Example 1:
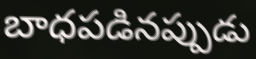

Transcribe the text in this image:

బాధపడినప్పుడు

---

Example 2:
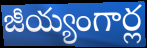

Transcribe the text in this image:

జీయ్యంగార్ల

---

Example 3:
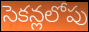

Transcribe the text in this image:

సెకన్లలోపు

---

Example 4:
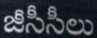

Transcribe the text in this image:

జీసీసీలు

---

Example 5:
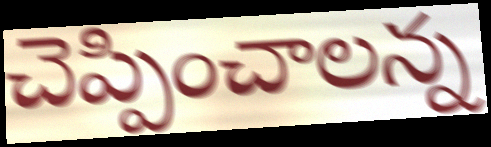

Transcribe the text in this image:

చెప్పించాలన్న